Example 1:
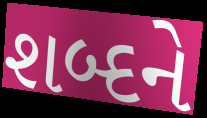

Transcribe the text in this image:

શબ્દને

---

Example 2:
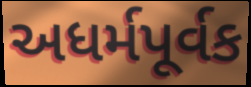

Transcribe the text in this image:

અધર્મપૂર્વક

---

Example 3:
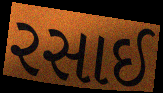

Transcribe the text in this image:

રસાઈ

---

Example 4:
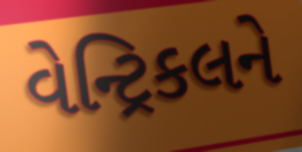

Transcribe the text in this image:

વેન્ટ્રિકલને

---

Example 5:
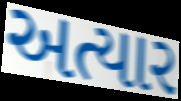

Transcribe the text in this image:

અત્યાર